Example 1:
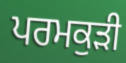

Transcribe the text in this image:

ਪਰਮਕੁੜੀ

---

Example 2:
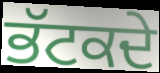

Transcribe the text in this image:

ਭੱਟਕਦੇ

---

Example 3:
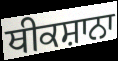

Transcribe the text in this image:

ਥੀਕਸ਼ਾਨਾ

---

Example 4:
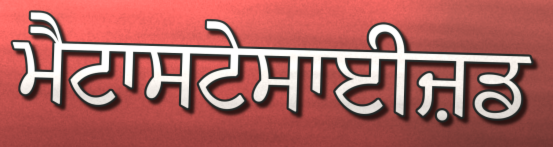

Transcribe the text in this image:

ਮੈਟਾਸਟੇਸਾਈਜ਼ਡ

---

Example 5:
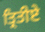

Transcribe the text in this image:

ਤ੍ਰਿਤੀਏ